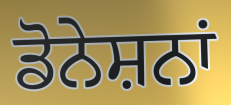
ਡੋਨੇਸ਼ਨਾਂ